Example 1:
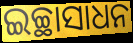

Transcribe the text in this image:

ଇଚ୍ଛାସାଧନ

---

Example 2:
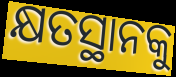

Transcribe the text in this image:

କ୍ଷତସ୍ଥାନକୁ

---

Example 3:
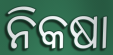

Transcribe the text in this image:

ନିକଷା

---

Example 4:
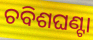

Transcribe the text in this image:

ଚବିଶଘଣ୍ଟା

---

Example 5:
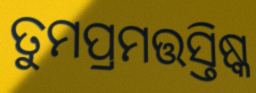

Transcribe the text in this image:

ତୁମପ୍ରମତ୍ତସ୍ତିଷ୍କ